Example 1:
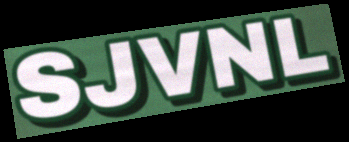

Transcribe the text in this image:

SJVNL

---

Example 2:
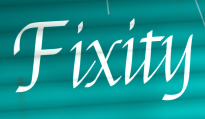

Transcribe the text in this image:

Fixity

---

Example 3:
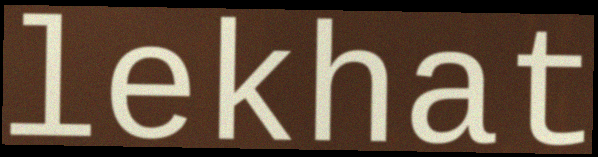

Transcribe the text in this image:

lekhat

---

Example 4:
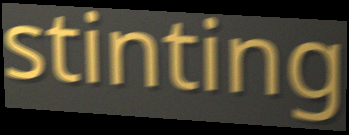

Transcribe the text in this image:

stinting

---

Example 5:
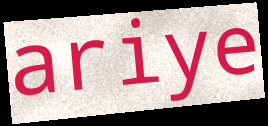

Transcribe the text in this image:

ariye